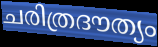
ചരിത്രദൗത്യം